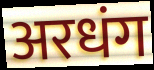
अरधंग